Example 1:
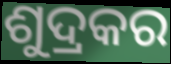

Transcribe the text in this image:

ଶୁଦ୍ରକର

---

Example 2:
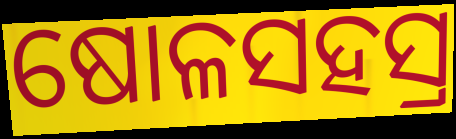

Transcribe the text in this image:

ଷୋଳସହସ୍ର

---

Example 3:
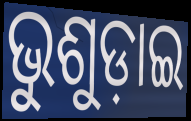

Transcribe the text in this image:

ଭୁଶୁଡ଼ାଇ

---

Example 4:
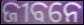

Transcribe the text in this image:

ଜୀବନେ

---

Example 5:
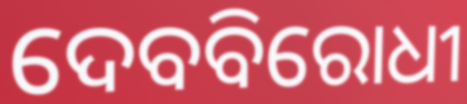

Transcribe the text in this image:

ଦେବବିରୋଧୀ